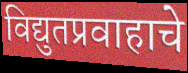
विद्युतप्रवाहाचे